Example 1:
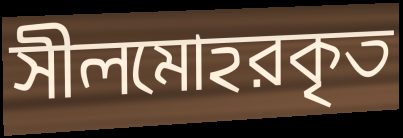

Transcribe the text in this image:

সীলমোহরকৃত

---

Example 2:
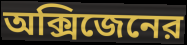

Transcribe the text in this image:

অক্সিজেনের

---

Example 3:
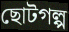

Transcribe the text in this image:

ছোটগল্প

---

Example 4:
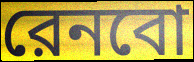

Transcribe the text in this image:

রেনবো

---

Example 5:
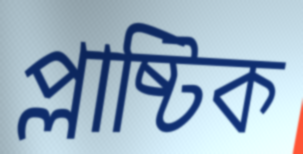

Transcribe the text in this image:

প্লাষ্টিক